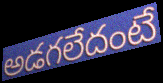
అడగలేదంటే